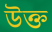
উক্ত